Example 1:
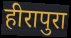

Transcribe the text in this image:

हीरापुरा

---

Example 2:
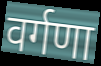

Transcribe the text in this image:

वर्गणा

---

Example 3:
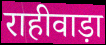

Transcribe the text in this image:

राहीवाड़ा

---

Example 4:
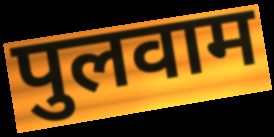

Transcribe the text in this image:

पुलवाम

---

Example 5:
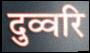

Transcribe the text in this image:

दुव्वरि